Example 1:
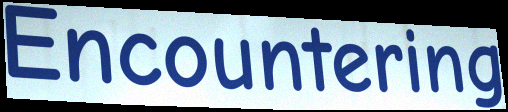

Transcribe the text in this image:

Encountering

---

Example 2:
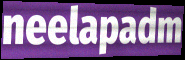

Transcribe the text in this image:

neelapadm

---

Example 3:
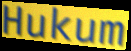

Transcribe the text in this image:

Hukum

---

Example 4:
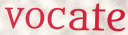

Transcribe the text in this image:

vocate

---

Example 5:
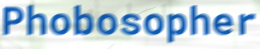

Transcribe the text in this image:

Phobosopher